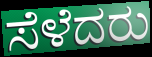
ಸೆಳೆದರು